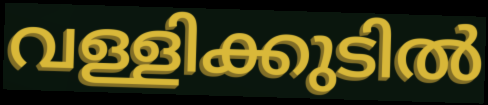
വള്ളിക്കുടിൽ